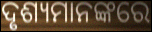
ଦୃଶ୍ୟମାନଙ୍କରେ